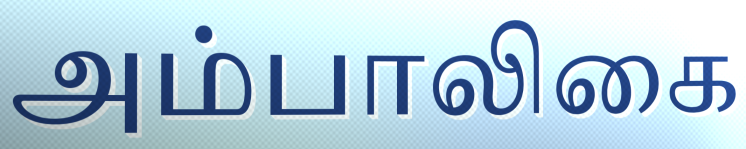
அம்பாலிகை